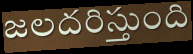
జలదరిస్తుంది